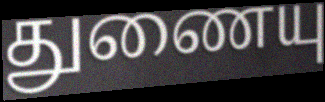
துணையு